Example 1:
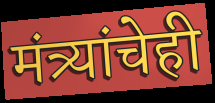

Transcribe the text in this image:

मंत्र्यांचेही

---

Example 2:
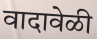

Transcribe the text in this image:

वादावेळी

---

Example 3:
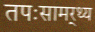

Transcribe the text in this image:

तपःसामर्थ्य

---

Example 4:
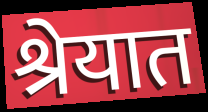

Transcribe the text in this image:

श्रेयात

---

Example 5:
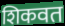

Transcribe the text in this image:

शिकवत